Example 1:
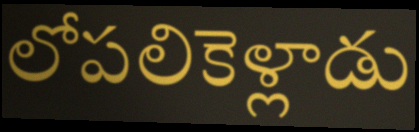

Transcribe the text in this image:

లోపలికెళ్లాడు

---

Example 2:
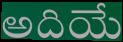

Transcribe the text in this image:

అదియే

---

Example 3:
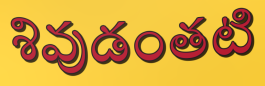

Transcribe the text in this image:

శివుడంతటి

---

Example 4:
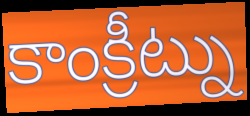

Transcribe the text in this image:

కాంక్రీట్ను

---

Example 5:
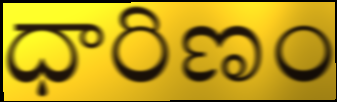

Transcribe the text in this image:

ధారిణం